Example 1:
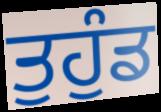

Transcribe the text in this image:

ਤੁਹੁੰਡ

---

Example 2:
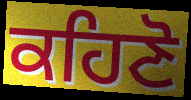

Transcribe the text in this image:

ਕਹਿਣੋ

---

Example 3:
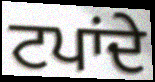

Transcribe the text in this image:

ਟਪਾਂਦੇ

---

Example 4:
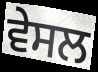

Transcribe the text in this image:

ਵੇਸਲ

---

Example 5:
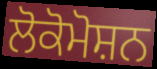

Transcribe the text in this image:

ਲੋਕੋਮੋਸ਼ਨ